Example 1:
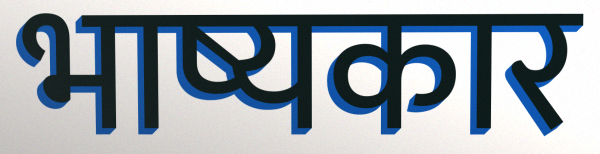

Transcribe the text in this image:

भाष्यकार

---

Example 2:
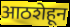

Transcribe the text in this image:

आठशेहून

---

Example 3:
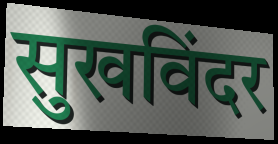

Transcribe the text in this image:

सुखविंदर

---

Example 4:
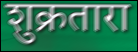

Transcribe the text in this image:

शुक्रतारा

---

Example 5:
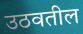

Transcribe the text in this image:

उठवतील